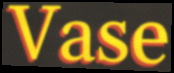
Vase